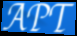
APT